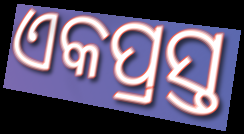
ଏକପ୍ରସ୍ତ